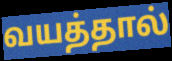
வயத்தால்